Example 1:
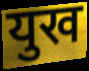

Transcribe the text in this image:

युख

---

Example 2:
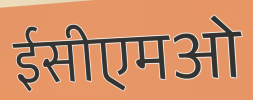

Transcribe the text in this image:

ईसीएमओ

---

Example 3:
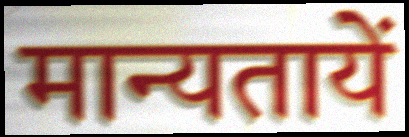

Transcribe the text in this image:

मान्यतायें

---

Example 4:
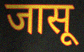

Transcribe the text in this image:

जासू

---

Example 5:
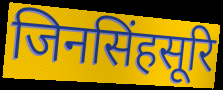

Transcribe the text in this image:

जिनसिंहसूरि